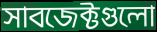
সাবজেক্টগুলো